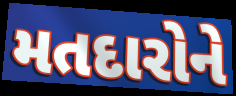
મતદારોને